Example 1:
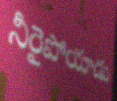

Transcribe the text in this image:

నీరైపోయాడు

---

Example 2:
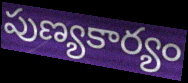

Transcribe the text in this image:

పుణ్యకార్యం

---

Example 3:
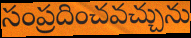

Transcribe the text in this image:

సంప్రదించవచ్చును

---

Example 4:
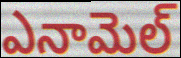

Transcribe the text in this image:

ఎనామెల్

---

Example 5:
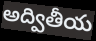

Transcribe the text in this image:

అద్వితీయ